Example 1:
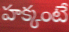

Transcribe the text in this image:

హక్కంటే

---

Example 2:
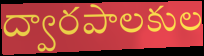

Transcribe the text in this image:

ద్వారపాలకుల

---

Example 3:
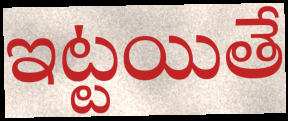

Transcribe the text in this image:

ఇట్టయితే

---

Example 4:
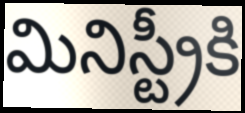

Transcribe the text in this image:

మినిస్ట్రీకి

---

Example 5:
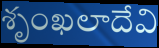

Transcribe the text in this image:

శృంఖలాదేవి